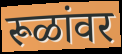
रूळांवर